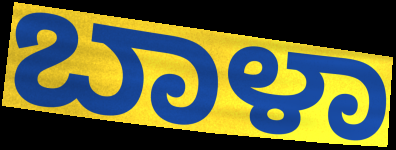
ಬಾಳಾ